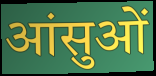
आंसुओं